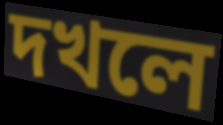
দখলে